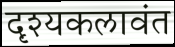
दृश्यकलावंत